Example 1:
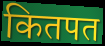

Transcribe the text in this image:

कितपत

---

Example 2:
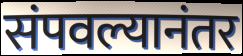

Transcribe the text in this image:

संपवल्यानंतर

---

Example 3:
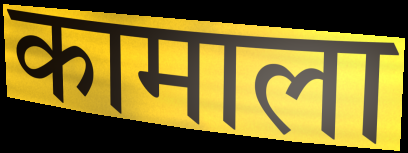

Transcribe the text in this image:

कामाला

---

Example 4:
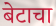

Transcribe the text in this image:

बेटाचा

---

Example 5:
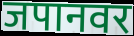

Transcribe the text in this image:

जपानवर